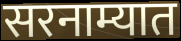
सरनाम्यात